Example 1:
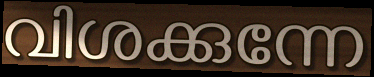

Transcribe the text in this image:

വിശക്കുന്നേ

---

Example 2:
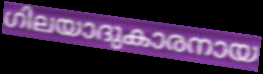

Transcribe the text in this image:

ഗിലയാദുകാരനായ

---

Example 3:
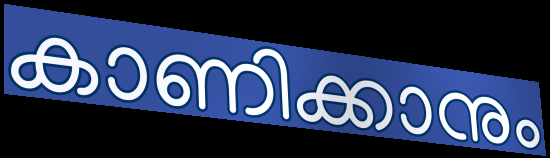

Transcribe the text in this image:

കാണിക്കാനും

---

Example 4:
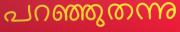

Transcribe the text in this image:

പറഞ്ഞുതന്നു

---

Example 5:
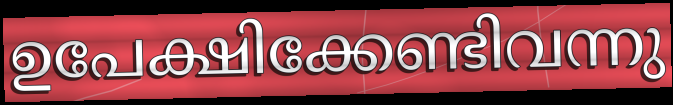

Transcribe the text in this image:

ഉപേക്ഷിക്കേണ്ടിവന്നു